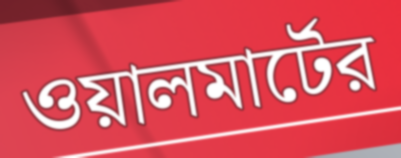
ওয়ালমার্টের